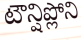
టౌన్షిప్లోని